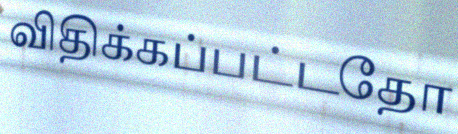
விதிக்கப்பட்டதோ